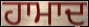
ਹਾਮਾਦ